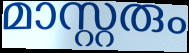
മാസ്റ്റരും